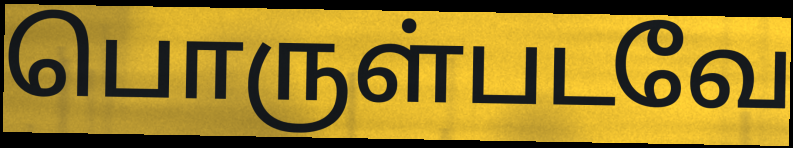
பொருள்படவே